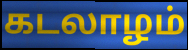
கடலாழம்